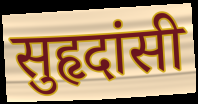
सुहृदांसी